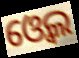
ଓ୍ବେଲ